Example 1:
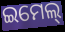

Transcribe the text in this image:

ଇମେଲ୍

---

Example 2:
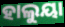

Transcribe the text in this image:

ହାଲୁୟା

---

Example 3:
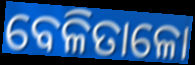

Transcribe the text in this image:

ବେଳିତାଳୋ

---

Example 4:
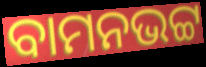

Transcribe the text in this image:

ବାମନଭଟ୍ଟ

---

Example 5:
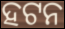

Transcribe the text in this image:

ହଟନ